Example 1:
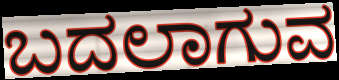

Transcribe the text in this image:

ಬದಲಾಗುವ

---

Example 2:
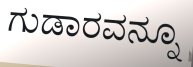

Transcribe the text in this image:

ಗುಡಾರವನ್ನೂ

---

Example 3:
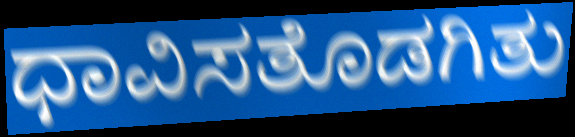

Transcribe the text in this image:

ಧಾವಿಸತೊಡಗಿತು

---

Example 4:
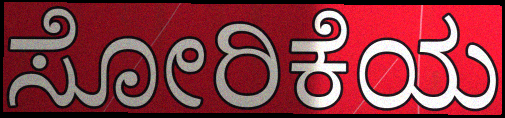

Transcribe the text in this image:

ಸೋರಿಕೆಯ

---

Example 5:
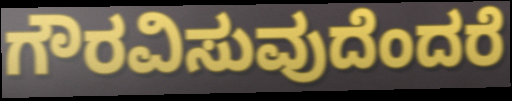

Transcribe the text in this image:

ಗೌರವಿಸುವುದೆಂದರೆ